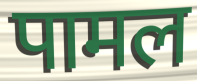
पामल